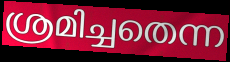
ശ്രമിച്ചതെന്ന